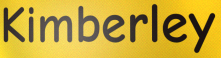
Kimberley